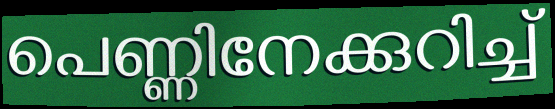
പെണ്ണിനേക്കുറിച്ച്